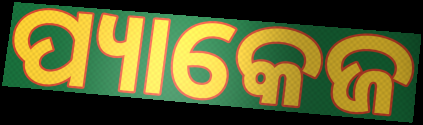
ପ୍ୟାକେଜ